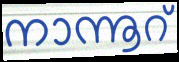
നാന്നൂറ്